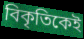
বিকৃতিকেই